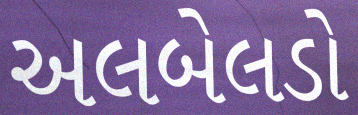
અલબેલડો